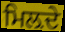
ਮਿਲ਼ਦੇ